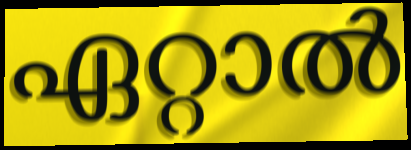
ഏറ്റാൽ